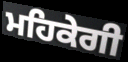
ਮਹਿਕੇਗੀ